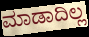
ಮಾಡಾದಿಲ್ಲ